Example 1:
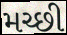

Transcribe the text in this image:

મચ્છી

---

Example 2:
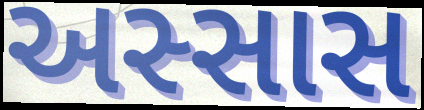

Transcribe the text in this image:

અસ્સાસ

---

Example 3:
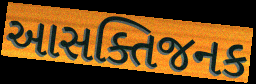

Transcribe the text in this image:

આસક્તિજનક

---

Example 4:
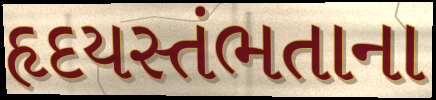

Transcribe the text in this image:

હૃદયસ્તંભતાના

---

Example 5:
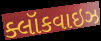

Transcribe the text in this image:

ક્લૉકવાઇઝ